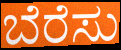
ಬೆರೆಸು